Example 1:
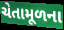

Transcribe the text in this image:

ચેતામૂળના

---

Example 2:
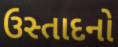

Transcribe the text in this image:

ઉસ્તાદનો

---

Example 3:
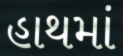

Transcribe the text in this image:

હાથમાં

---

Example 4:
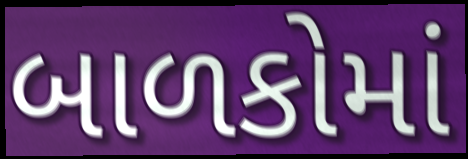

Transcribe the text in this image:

બાળકોમાં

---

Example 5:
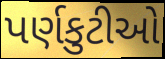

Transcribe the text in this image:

પર્ણકુટીઓ